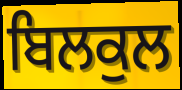
ਬਿਲਕੁਲ